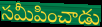
సమీపించాడు